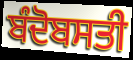
ਬੰਦੋਬਸਤੀ